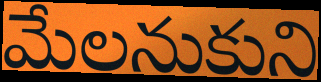
మేలనుకుని